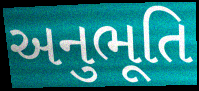
અનુભૂતિ